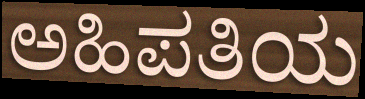
ಅಹಿಪತಿಯ